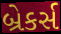
બ્રેકર્સ